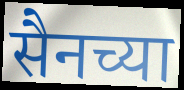
सैनच्या